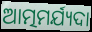
ଆତ୍ମମର୍ଯ୍ୟଦା